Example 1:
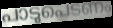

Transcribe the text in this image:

പാടുപെടണം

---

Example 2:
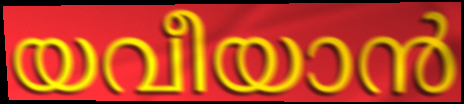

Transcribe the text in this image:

യവീയാൻ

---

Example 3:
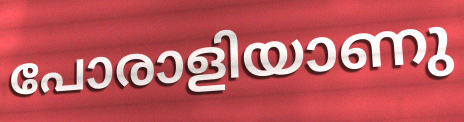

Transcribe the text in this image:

പോരാളിയാണു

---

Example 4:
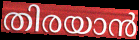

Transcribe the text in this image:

തിരയാൻ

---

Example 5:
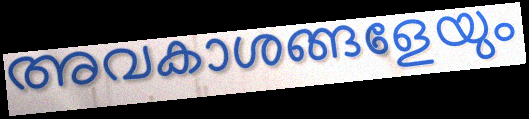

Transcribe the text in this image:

അവകാശങ്ങളേയും